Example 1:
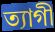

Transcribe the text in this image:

ত্যাগী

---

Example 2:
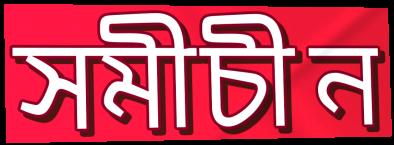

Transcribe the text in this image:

সমীচীন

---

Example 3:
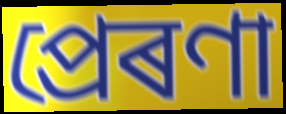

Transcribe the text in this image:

প্ৰেৰণা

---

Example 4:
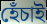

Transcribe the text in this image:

হেঁচাই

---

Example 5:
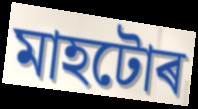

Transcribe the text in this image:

মাহটোৰ